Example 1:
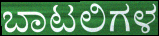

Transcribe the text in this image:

ಬಾಟಲಿಗಳ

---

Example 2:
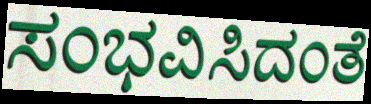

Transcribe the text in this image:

ಸಂಭವಿಸಿದಂತೆ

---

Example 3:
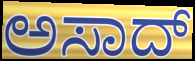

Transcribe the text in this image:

ಅಸಾದ್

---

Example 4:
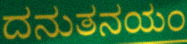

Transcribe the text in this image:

ದನುತನಯಂ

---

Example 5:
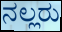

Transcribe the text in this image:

ನಲ್ಲರು